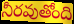
నీరవుతోంది